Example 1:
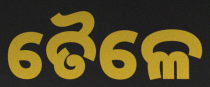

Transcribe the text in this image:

ତୈଳେ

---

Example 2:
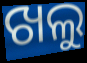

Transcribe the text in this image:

ଖଲୁ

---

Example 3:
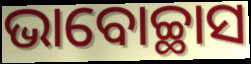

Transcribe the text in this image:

ଭାବୋଚ୍ଛାସ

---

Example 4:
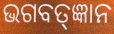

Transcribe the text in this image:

ଭଗବତ୍‌ଜ୍ଞାନ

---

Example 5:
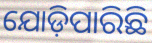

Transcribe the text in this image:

ଯୋଡ଼ିପାରିଛି